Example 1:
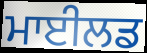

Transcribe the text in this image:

ਮਾਈਲਡ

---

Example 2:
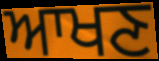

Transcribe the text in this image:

ਆਖਣ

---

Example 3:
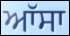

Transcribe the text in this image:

ਆੱਸਾ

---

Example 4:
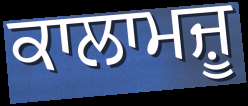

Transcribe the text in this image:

ਕਾਲਾਮਜ਼ੂ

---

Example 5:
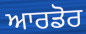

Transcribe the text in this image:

ਆਰਡੋਰ